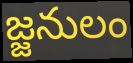
జ్జనులం